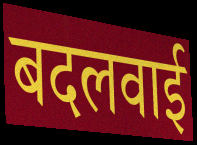
बदलवाई